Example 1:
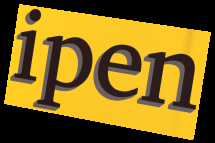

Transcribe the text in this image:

ipen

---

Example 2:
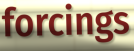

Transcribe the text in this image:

forcings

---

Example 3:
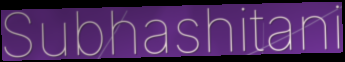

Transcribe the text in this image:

Subhashitani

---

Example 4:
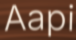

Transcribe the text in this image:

Aapi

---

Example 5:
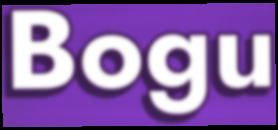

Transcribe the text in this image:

Bogu